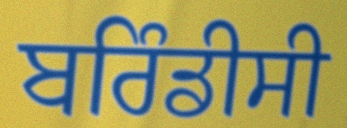
ਬਰਿੰਡੀਸੀ